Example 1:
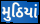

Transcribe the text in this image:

મુઠિયાં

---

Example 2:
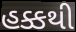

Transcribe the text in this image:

હક્કથી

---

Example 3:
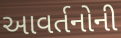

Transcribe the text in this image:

આવર્તનોની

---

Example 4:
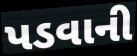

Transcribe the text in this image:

પડવાની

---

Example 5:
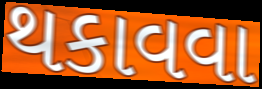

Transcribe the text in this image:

થકાવવા